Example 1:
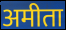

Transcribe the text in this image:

अमीता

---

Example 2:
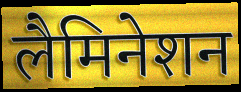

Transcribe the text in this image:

लैमिनेशन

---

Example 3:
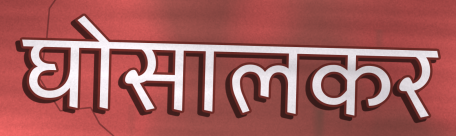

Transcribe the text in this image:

घोसालकर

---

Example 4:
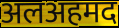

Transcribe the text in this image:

अलअहमद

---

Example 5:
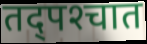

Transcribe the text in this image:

तद्पश्चात